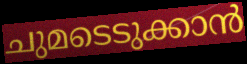
ചുമടെടുക്കാൻ